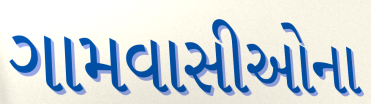
ગામવાસીઓના